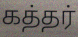
கத்தர்